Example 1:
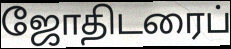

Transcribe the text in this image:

ஜோதிடரைப்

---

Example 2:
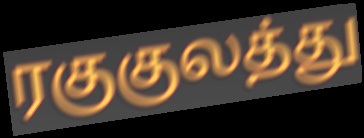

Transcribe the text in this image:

ரகுகுலத்து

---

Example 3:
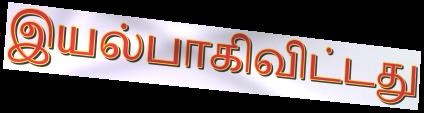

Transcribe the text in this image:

இயல்பாகிவிட்டது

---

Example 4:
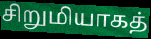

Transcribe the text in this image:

சிறுமியாகத்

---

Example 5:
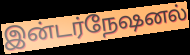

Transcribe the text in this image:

இன்டர்நேஷனல்